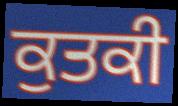
ਕੁਤਕੀ